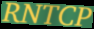
RNTCP